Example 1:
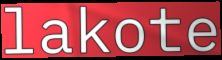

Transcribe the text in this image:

lakote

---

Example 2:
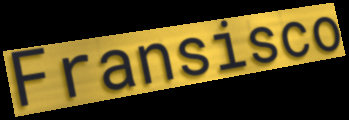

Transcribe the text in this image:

Fransisco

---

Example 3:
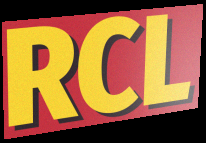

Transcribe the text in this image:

RCL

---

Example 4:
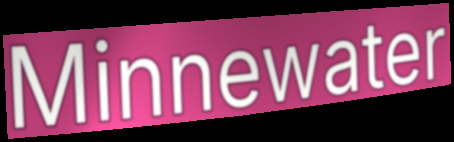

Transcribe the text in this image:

Minnewater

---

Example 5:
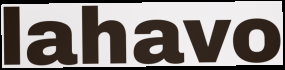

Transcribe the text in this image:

lahavo